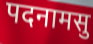
पदनामसु